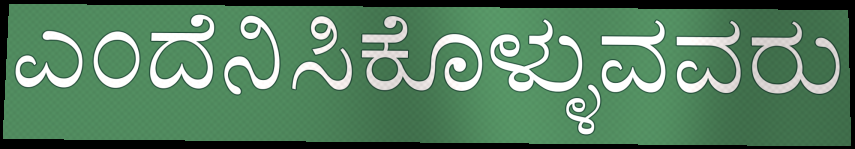
ಎಂದೆನಿಸಿಕೊಳ್ಳುವವರು